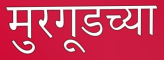
मुरगूडच्या